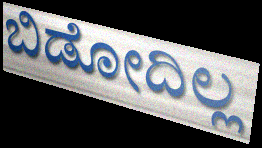
ಬಿಡೋದಿಲ್ಲ